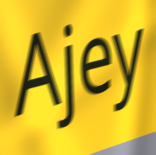
Ajey